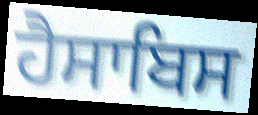
ਹੈਸਾਬਿਸ